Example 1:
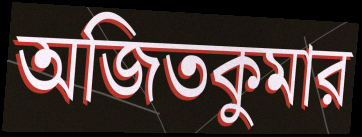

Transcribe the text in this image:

অজিতকুমার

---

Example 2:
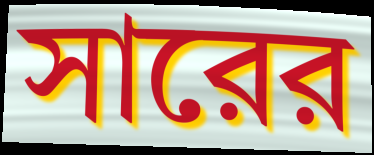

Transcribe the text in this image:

সারের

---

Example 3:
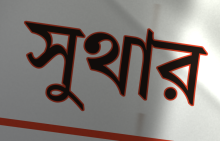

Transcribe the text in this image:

সুথার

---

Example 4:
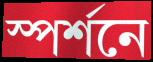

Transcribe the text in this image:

স্পর্শনে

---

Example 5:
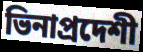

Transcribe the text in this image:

ভিনাপ্রদেশী